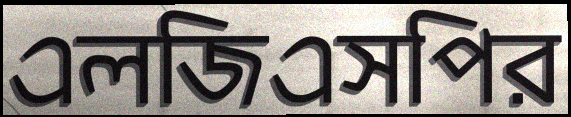
এলজিএসপির